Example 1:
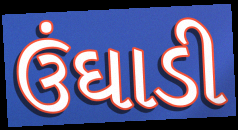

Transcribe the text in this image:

ઉંઘાડી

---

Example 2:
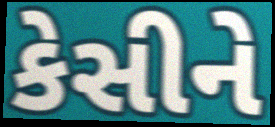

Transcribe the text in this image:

કેસીને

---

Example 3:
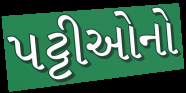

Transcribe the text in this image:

પટ્ટીઓનો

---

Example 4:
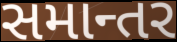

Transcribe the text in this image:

સમાન્તર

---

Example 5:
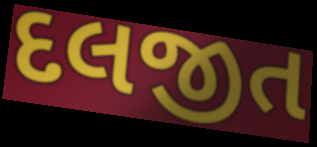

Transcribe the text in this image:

દલજીત